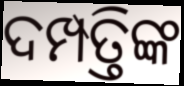
ଦମ୍ପତ୍ତିଙ୍କ